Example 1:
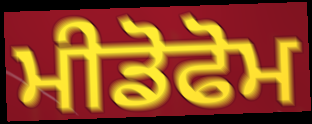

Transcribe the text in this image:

ਮੀਡੋਫੋਮ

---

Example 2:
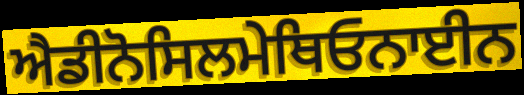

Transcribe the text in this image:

ਐਡੀਨੋਸਿਲਮੇਥਿਓਨਾਈਨ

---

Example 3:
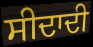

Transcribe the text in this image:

ਸੀਦਾਦੀ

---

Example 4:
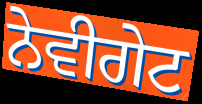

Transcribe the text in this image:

ਨੇਵੀਗੇਟ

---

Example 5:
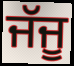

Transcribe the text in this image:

ਜੱਜੂ